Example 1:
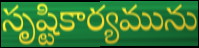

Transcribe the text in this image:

సృష్టికార్యమును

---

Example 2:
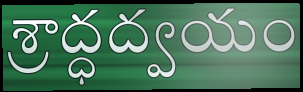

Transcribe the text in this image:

శ్రాద్ధద్వయం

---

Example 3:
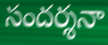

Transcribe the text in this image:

సందర్శనా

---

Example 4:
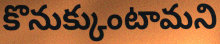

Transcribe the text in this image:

కొనుక్కుంటామని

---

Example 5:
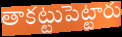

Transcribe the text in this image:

తాకట్టుపెట్టారు